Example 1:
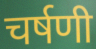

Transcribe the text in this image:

चर्षणी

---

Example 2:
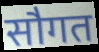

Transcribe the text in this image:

सौगत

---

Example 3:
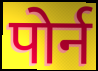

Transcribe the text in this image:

पोर्न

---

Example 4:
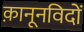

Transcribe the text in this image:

क़ानूनविदों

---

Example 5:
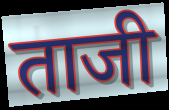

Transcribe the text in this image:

ताजी